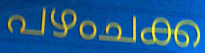
പഴംചക്ക